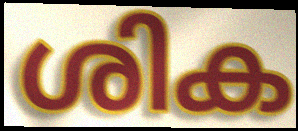
ശിക